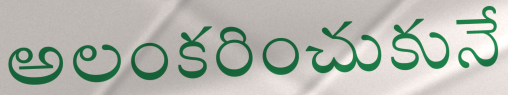
అలంకరించుకునే